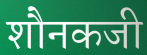
शौनकजी